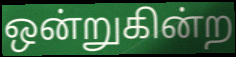
ஒன்றுகின்ற